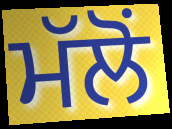
ਮੱਲੋਂ